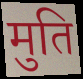
मुति